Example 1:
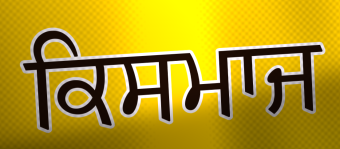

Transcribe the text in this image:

ਕਿਸਮਾਜ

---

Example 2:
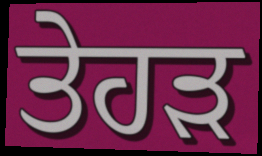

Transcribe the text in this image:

ਤੇਹੜ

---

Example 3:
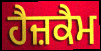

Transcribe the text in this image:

ਹੈਜ਼ਕੈਮ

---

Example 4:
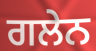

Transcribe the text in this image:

ਗਲੇਨ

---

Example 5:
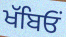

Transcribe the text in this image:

ਖੱਬਿਓਂ